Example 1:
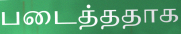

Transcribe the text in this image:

படைத்ததாக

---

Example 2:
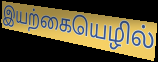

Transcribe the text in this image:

இயற்கையெழில்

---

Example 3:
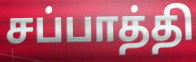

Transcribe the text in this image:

சப்பாத்தி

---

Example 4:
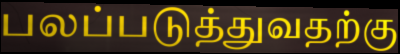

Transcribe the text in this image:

பலப்படுத்துவதற்கு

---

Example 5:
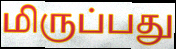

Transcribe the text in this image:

மிருப்பது